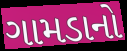
ગામડાનો